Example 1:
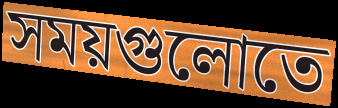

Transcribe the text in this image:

সময়গুলোতে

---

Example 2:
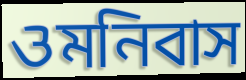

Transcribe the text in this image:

ওমনিবাস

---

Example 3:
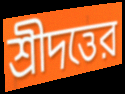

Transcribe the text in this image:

শ্রীদত্তের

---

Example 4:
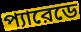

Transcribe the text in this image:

প্যারেডে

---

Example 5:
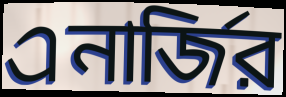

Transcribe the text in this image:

এনার্জির